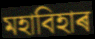
মহাবিহাৰ